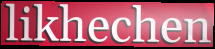
likhechen